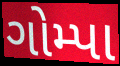
ગોમ્પા